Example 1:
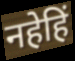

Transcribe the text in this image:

नहेहिं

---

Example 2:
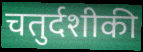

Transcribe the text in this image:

चतुर्दशीकी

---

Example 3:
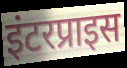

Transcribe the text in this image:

इंटरप्राइस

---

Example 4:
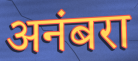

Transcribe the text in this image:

अनंबरा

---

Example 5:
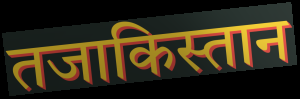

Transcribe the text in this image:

तजाकिस्‍तान